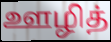
ஊழித்